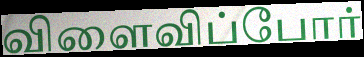
விளைவிப்போர்